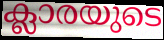
ക്ലാരയുടെ